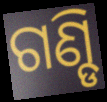
ଗଣ୍ଡି